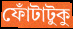
ফোঁটাটুকু